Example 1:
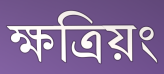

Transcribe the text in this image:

ক্ষত্রিয়ং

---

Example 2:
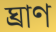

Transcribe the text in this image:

ঘ্রাণ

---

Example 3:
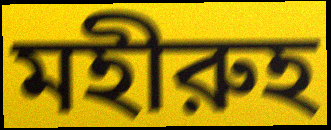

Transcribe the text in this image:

মহীরুহ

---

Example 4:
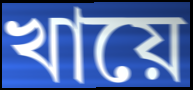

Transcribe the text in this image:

খায়ে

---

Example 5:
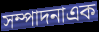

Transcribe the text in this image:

সম্পাদনাএক